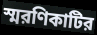
স্মরণিকাটির